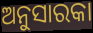
ଅନୁସାରକା